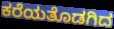
ಕರೆಯತೊಡಗಿದ